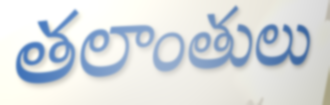
తలాంతులు